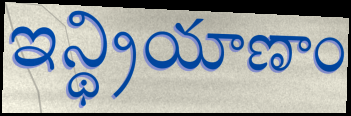
ఇన్థ్రియాణాం